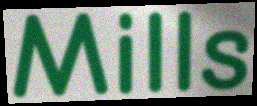
Mills